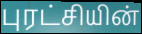
புரட்சியின்